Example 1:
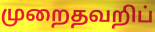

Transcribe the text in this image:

முறைதவறிப்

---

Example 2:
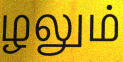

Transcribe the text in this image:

ழலும்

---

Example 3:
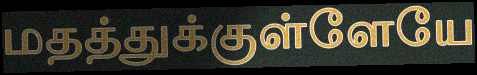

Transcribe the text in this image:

மதத்துக்குள்ளேயே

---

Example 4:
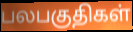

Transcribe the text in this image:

பலபகுதிகள்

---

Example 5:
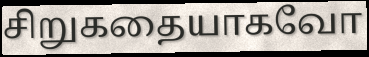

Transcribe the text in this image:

சிறுகதையாகவோ